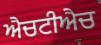
ਐਚਟੀਐਚ